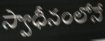
స్వాధీనంలోనే